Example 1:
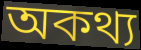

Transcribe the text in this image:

অকথ্য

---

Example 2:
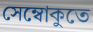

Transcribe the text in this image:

সেম্বোকুতে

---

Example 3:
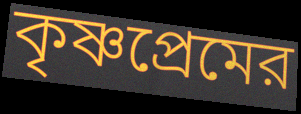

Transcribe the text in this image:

কৃষ্ণপ্রেমের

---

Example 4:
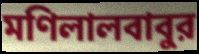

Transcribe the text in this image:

মণিলালবাবুর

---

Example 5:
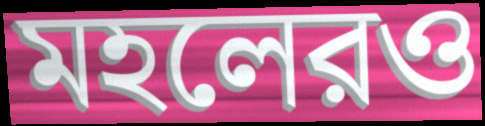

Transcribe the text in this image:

মহলেরও